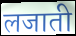
लजाती